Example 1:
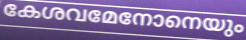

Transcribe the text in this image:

കേശവമേനോനെയും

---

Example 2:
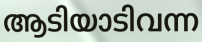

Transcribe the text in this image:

ആടിയാടിവന്ന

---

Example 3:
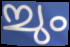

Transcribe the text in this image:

ച്ചും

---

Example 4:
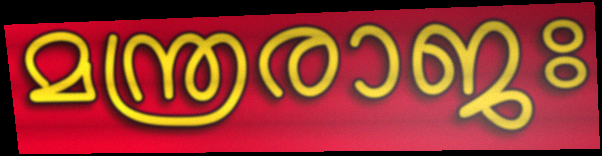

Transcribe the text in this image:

മന്ത്രരാജഃ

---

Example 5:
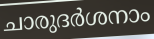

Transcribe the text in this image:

ചാരുദർശനാം